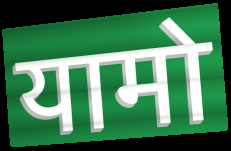
यामो